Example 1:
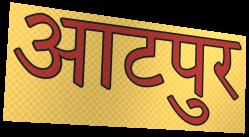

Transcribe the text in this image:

आटपुर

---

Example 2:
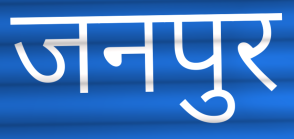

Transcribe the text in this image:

जनपुर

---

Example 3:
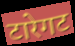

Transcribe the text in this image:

टारेगट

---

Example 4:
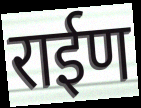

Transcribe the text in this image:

राईण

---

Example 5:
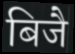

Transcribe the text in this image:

बिजै